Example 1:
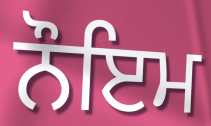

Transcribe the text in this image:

ਨੌਇਮ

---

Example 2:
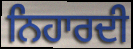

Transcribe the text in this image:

ਨਿਹਾਰਦੀ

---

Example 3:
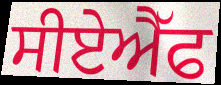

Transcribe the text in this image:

ਸੀਏਐੱਫ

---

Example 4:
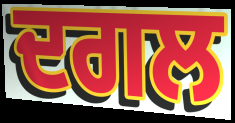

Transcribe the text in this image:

ਦਗਲ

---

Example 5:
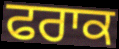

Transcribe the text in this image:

ਫਰਾਕ